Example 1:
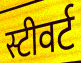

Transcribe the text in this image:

स्टीवर्ट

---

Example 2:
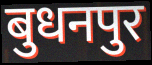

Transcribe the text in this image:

बुधनपुर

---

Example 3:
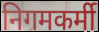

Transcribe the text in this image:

निगमकर्मी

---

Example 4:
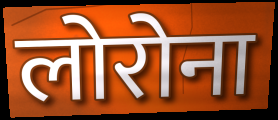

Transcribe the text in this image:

लोरोना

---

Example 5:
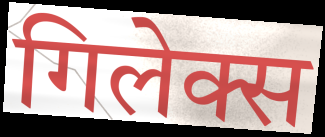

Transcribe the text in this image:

गिलेक्स